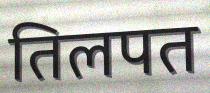
तिलपत